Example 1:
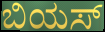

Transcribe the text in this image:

ಬಿಯಸ್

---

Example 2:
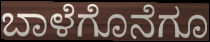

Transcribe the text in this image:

ಬಾಳೆಗೊನೆಗೂ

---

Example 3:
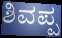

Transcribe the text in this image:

ಶಿವಪ್ಪ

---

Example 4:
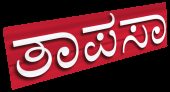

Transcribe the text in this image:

ತಾಪಸಾ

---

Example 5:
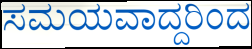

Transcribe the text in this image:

ಸಮಯವಾದ್ದರಿಂದ